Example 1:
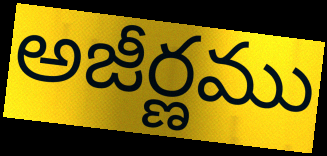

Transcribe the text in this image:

అజీర్ణము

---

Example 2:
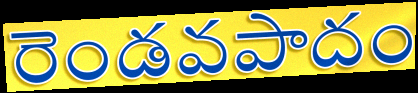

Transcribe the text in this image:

రెండవపాదం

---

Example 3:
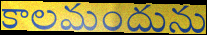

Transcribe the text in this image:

కాలమందును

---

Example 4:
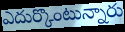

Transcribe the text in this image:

ఎదుర్కొంటున్నారు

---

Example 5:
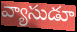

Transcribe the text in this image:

వ్యాసుడూ